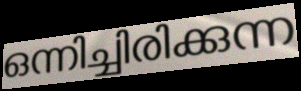
ഒന്നിച്ചിരിക്കുന്ന